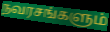
நவரசங்களும்